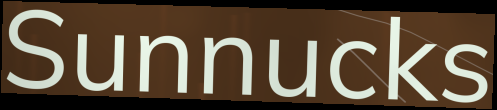
Sunnucks